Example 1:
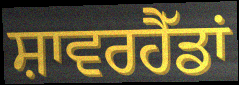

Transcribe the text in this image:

ਸ਼ਾਵਰਹੈੱਡਾਂ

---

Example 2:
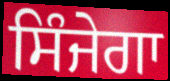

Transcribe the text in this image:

ਸਿੰਜੇਗਾ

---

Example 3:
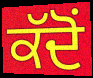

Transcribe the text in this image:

ਕੱਦੋਂ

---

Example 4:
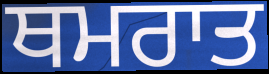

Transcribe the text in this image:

ਥਮਰਾਤ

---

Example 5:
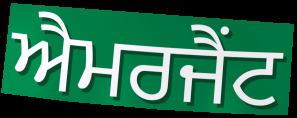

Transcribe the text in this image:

ਐਮਰਜੈਂਟ